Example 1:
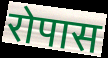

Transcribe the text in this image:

रोपास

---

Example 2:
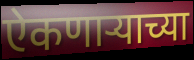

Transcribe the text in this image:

ऐकणाऱ्याच्या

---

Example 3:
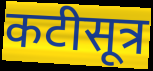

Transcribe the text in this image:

कटीसूत्र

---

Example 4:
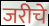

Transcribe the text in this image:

जरीचे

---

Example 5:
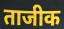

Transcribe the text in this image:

ताजीक